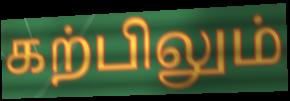
கற்பிலும்